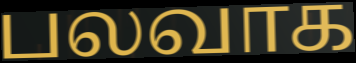
பலவாக